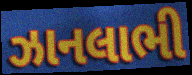
ઝાનલાભી